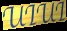
UIUI